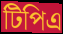
টিপিএ